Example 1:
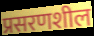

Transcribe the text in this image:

प्रसरणशील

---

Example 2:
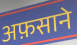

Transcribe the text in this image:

अफ़साने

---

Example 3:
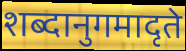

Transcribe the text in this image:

शब्दानुगमादृते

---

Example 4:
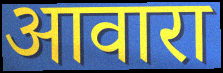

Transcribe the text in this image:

आवारा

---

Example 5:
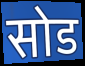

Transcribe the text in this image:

सोड